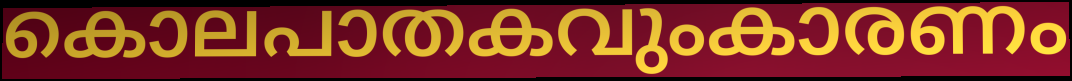
കൊലപാതകവുംകാരണം